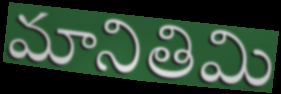
మానితిమి